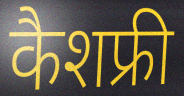
कैशफ्री